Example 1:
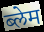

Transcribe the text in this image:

ब्लेम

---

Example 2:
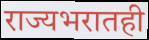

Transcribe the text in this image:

राज्यभरातही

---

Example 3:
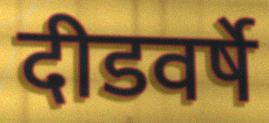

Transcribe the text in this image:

दीडवर्षे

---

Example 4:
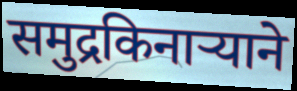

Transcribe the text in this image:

समुद्रकिनाऱ्याने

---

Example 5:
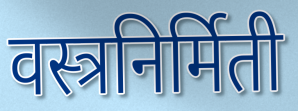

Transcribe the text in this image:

वस्त्रनिर्मिती